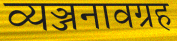
व्यञ्जनावग्रह